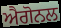
ਐਗੋਨਲ